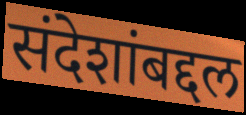
संदेशांबद्दल